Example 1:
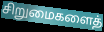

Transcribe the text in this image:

சிறுமைகளைத்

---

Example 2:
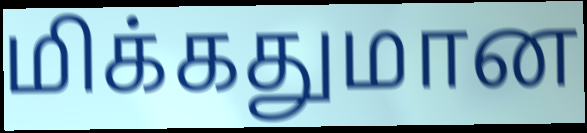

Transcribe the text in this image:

மிக்கதுமான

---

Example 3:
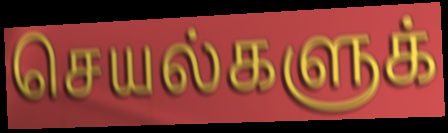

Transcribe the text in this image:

செயல்களுக்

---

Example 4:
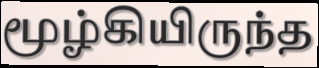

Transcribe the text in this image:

மூழ்கியிருந்த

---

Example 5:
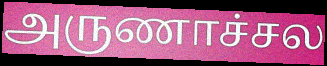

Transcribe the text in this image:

அருணாச்சல